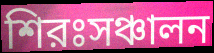
শিরঃসঞ্চালন